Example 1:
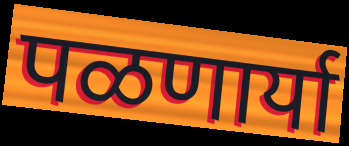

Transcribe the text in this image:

पळणार्या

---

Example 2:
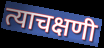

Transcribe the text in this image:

त्याचक्षणी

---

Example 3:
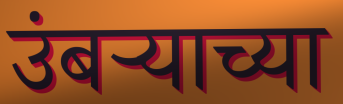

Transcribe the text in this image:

उंबऱ्याच्या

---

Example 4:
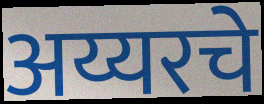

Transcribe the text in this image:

अय्यरचे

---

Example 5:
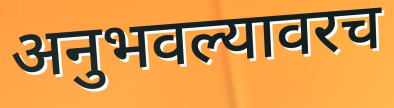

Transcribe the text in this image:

अनुभवल्यावरच